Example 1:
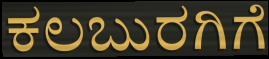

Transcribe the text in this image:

ಕಲಬುರಗಿಗೆ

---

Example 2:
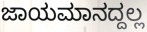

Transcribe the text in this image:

ಜಾಯಮಾನದ್ದಲ್ಲ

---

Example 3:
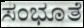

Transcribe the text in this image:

ಸಂಭೂತೆ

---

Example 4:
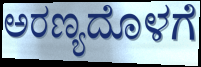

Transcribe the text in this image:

ಅರಣ್ಯದೊಳಗೆ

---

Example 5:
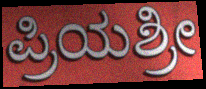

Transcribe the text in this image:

ಪ್ರಿಯಶ್ರೀ